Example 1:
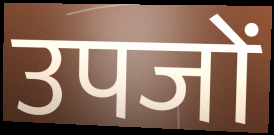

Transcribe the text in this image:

उपजों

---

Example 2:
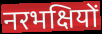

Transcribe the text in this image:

नरभक्षियों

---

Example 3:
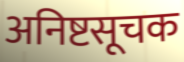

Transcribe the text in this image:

अनिष्टसूचक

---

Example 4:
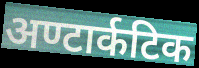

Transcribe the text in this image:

अण्टार्कटिक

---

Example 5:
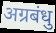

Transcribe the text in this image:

अग्रबंधु